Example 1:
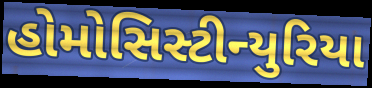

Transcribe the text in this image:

હોમોસિસ્ટીન્યુરિયા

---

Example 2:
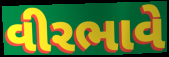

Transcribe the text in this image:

વીરભાવે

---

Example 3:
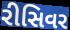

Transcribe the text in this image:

રીસિવર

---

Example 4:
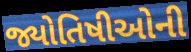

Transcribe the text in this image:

જ્યોતિષીઓની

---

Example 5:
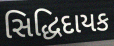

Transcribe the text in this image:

સિદ્ધિદાયક